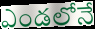
ఎండలోనే